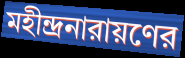
মহীন্দ্রনারায়ণের